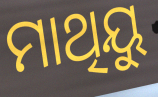
ମାଥିୟୁ